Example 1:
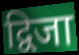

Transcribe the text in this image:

द्विजा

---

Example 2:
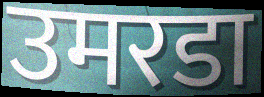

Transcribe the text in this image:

उमरडा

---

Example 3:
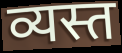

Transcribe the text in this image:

व्यस्त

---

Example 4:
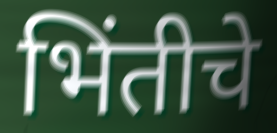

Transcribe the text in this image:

भिंतीचे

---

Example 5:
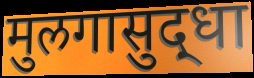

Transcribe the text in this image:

मुलगासुद्धा